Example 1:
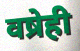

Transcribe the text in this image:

वष्रेही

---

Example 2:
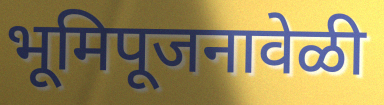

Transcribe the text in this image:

भूमिपूजनावेळी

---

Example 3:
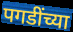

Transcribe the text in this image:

पगडींच्या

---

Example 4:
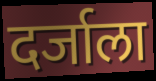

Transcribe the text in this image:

दर्जाला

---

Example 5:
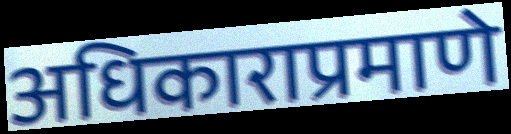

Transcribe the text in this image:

अधिकाराप्रमाणे